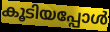
കൂടിയപ്പോൾ